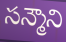
సన్మౌని